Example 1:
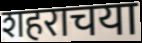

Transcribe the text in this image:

शहराचया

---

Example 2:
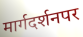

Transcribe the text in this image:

मार्गदर्शनपर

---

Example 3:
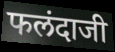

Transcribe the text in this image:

फलंदाजी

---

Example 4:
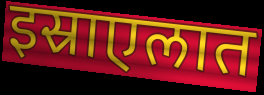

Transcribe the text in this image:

इस्राएलात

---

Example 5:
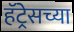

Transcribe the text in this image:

हॅट्रेसच्या